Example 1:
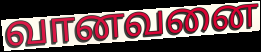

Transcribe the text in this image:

வானவனை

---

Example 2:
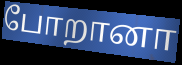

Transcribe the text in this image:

போறானா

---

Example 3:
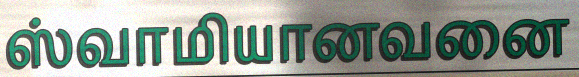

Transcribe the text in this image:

ஸ்வாமியானவனை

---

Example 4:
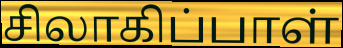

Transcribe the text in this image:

சிலாகிப்பாள்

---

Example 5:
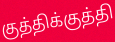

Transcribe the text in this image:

குத்திக்குத்தி